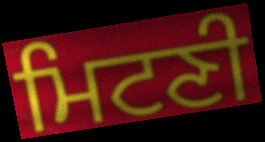
ਮਿਟਣੀ